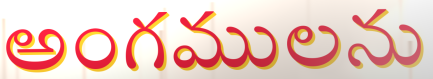
అంగములను